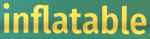
inflatable